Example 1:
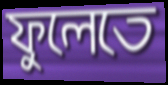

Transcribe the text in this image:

ফুলেতে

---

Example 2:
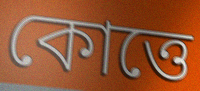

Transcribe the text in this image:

কোত্তে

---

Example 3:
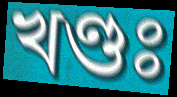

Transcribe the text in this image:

খণ্ডঃ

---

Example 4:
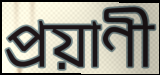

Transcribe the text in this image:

প্রয়াণী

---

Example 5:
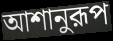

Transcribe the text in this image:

আশানুরূপ